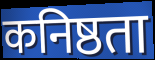
कनिष्ठता